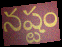
నష్టం